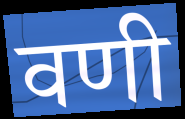
वणी